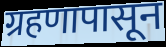
ग्रहणापासून